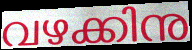
വഴക്കിനു